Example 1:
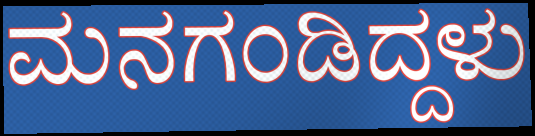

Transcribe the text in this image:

ಮನಗಂಡಿದ್ದಳು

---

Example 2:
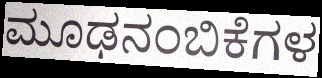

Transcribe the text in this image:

ಮೂಢನಂಬಿಕೆಗಳ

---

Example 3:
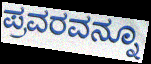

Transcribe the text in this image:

ಪ್ರವರವನ್ನೂ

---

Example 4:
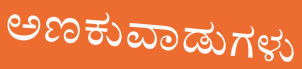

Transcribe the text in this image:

ಅಣಕುವಾಡುಗಳು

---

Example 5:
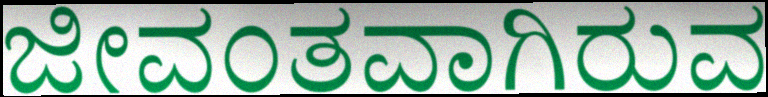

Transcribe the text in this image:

ಜೀವಂತವಾಗಿರುವ